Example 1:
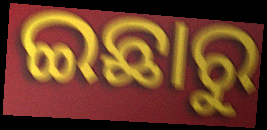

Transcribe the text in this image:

ଇଛାରୁ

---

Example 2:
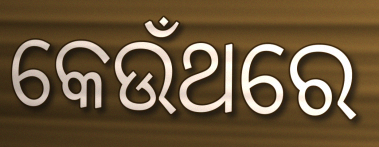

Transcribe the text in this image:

କେଉଁଥରେ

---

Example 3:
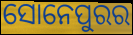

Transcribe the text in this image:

ସୋନେପୁରର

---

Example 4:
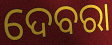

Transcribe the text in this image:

ଦେବରା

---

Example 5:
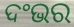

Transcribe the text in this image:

ଦଂଭର